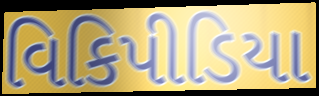
વિકિપીડિયા